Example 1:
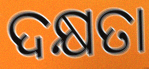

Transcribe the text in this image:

ଦକ୍ଷତା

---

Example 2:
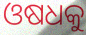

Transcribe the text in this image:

ଓଷଧକୁ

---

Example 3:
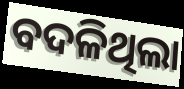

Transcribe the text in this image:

ବଦଳିଥିଲା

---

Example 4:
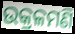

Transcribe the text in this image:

ଉକ୍ରଳମଣି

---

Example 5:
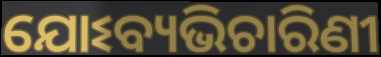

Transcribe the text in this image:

ଯୋଽବ୍ୟଭିଚାରିଣୀ